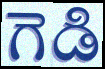
గెడి